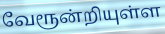
வேரூன்றியுள்ள